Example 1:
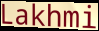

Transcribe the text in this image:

Lakhmi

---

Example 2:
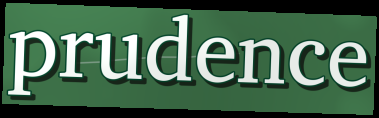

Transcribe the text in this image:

prudence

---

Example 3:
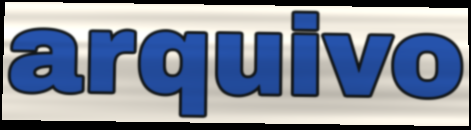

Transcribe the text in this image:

arquivo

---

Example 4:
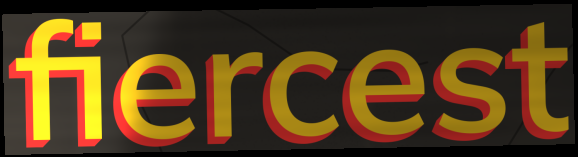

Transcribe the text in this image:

fiercest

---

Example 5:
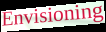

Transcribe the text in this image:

Envisioning